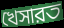
খেসারত